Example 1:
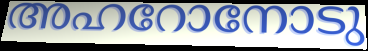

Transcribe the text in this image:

അഹറോനോടു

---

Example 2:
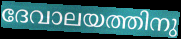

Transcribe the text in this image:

ദേവാലയത്തിനു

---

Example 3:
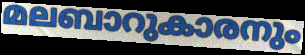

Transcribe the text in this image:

മലബാറുകാരനും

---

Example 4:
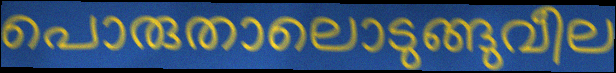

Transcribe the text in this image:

പൊരുതാലൊടുങ്ങുവീല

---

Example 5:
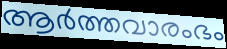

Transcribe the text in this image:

ആർത്തവാരംഭം